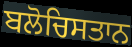
ਬਲੋਚਿਸਤਾਨ